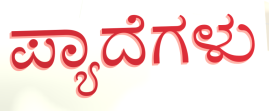
ಪ್ಯಾದೆಗಳು